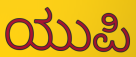
ಯುಪಿ